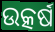
ଉତ୍କର୍ଷ